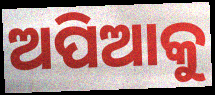
ଅପିଆକୁ